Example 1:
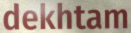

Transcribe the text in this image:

dekhtam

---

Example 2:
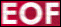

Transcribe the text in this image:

EOF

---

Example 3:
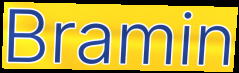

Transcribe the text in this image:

Bramin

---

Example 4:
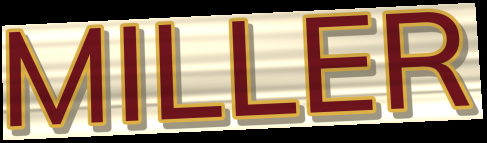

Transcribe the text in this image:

MILLER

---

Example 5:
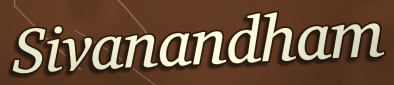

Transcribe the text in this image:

Sivanandham